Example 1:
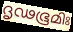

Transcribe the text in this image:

ദൃഢഭൂമിഃ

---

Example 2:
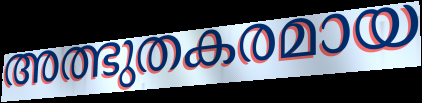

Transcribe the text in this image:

അത്ഭുതകരമായ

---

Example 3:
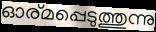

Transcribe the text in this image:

ഓര്മപ്പെടുത്തുന്നു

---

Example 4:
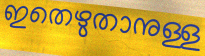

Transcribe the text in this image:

ഇതെഴുതാനുള്ള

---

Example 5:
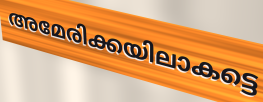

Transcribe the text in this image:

അമേരിക്കയിലാകട്ടെ